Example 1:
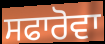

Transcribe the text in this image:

ਸਫਾਰੋਵਾ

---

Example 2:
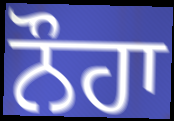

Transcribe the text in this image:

ਨੌਹਾ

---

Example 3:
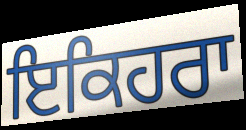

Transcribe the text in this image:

ਇਕਿਹਰਾ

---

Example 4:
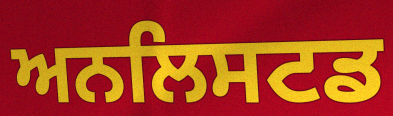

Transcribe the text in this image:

ਅਨਲਿਸਟਡ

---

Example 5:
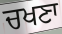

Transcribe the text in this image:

ਚਖਣਾ